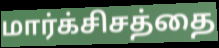
மார்க்சிசத்தை